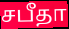
சபீதா